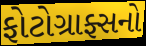
ફોટોગ્રાફ્સનો